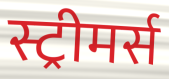
स्ट्रीमर्स